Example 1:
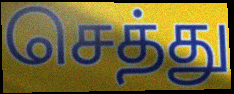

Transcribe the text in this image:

செத்து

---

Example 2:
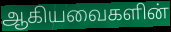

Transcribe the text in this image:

ஆகியவைகளின்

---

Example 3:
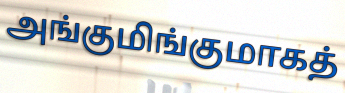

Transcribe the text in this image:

அங்குமிங்குமாகத்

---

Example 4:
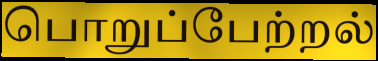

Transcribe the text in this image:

பொறுப்பேற்றல்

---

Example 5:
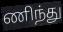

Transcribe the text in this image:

ணிந்து